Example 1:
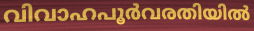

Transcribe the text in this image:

വിവാഹപൂർവരതിയിൽ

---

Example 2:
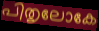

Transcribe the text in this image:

പിതൃലോകേ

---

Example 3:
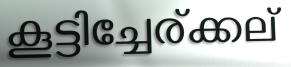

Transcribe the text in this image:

കൂട്ടിച്ചേര്ക്കല്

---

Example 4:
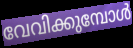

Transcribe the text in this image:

വേവിക്കുമ്പോൾ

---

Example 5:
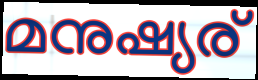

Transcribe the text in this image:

മനുഷ്യര്